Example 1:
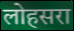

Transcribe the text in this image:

लोहसरा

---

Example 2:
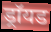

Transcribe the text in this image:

ड्रॉयड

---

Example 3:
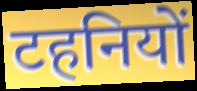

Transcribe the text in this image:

टहनियों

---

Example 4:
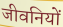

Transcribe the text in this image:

जीवनियों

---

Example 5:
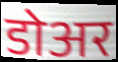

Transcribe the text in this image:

डोअर